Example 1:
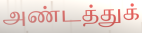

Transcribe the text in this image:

அண்டத்துக்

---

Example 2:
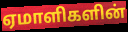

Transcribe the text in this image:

ஏமாளிகளின்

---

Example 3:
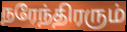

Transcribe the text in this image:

நரேந்திரரும்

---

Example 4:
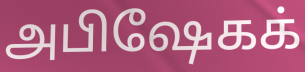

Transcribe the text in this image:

அபிஷேகக்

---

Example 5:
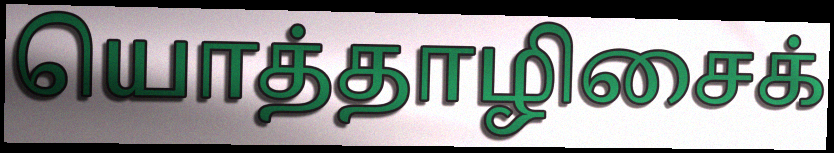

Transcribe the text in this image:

யொத்தாழிசைக்